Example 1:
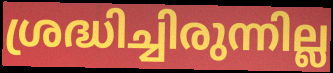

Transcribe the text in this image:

ശ്രദ്ധിച്ചിരുന്നില്ല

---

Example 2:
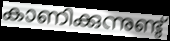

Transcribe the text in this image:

കാണിക്കുന്നുണ്ടു്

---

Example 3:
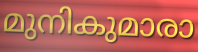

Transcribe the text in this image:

മുനികുമാരാ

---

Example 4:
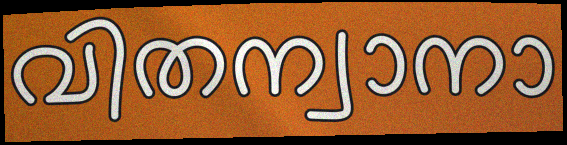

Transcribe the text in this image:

വിതന്വാനാ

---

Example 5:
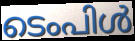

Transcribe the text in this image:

ടെംപിൾ